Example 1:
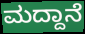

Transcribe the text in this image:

ಮದ್ದಾನೆ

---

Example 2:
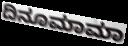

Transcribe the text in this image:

ದಿನೂಮಾಮಾ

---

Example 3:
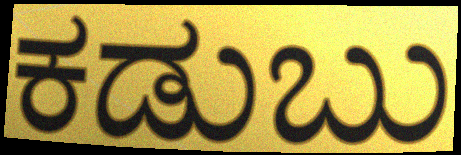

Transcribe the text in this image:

ಕಡುಬು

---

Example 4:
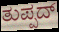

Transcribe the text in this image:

ತುಪ್ಪದ್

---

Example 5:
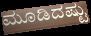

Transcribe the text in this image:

ಮೂಡಿದಷ್ಟು